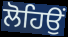
ਲੋਹਿਉਂ